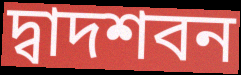
দ্বাদশবন